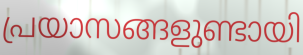
പ്രയാസങ്ങളുണ്ടായി